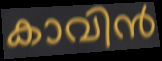
കാവിൻ